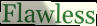
Flawless